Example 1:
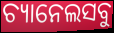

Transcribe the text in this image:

ଚ୍ୟାନେଲସବୁ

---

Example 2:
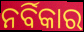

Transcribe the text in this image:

ନର୍ବିକାର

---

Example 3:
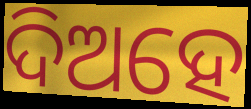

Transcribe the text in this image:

ଦିଅହେ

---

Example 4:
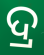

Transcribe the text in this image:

ଦ୍ର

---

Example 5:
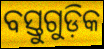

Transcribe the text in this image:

ବସ୍ତୁଗୁଡ଼ିକ